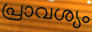
പ്രാവശ്യം